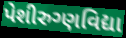
પેશીરુગ્ણવિદ્યા